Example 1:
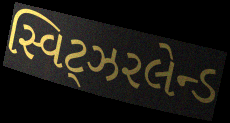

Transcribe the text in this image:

સ્વિટ્ઝરલેન્ડ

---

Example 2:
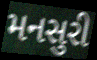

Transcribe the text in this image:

મનસુરી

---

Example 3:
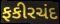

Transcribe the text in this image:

ફકીરચંદ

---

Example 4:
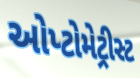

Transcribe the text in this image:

ઓપ્ટોમેટ્રીસ્ટ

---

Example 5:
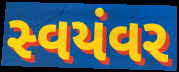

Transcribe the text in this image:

સ્વયંવર